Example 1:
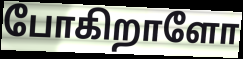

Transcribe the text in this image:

போகிறாளோ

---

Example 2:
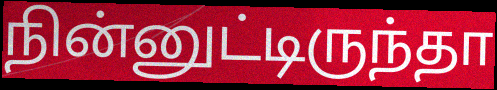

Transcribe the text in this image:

நின்னுட்டிருந்தா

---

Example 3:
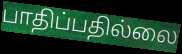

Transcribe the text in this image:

பாதிப்பதில்லை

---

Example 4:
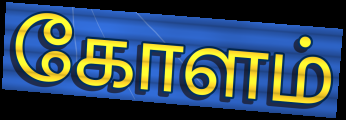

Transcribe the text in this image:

கோளம்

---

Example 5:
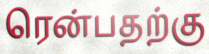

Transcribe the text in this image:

ரென்பதற்கு